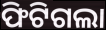
ଫିଟିଗଲା